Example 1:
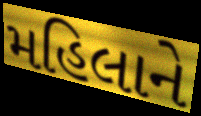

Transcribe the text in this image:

મહિલાને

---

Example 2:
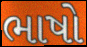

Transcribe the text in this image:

ભાષો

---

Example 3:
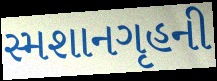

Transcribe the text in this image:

સ્મશાનગૃહની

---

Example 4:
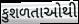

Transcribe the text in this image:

કુશળતાઓથી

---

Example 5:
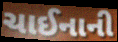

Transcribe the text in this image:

ચાઈનાની